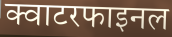
क्वाटरफाइनल